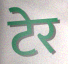
टेर